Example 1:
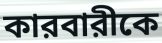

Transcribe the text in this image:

কারবারীকে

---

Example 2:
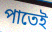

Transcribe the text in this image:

পাতেই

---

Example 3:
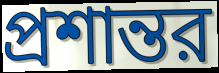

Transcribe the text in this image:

প্রশান্তর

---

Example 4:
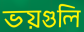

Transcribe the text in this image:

ভয়গুলি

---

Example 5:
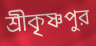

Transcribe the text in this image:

শ্রীকৃষ্ণপুর